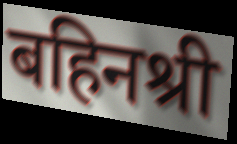
बहिनश्री